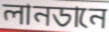
লানডানে